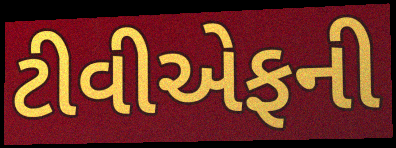
ટીવીએફની